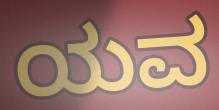
ಯವ